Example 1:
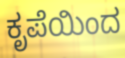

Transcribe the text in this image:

ಕೃಪೆಯಿಂದ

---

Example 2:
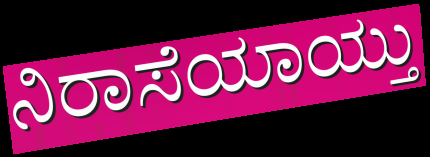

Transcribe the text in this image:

ನಿರಾಸೆಯಾಯ್ತು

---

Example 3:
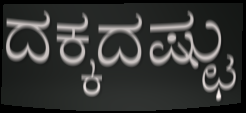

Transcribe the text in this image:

ದಕ್ಕದಷ್ಟು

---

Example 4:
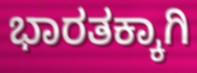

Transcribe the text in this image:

ಭಾರತಕ್ಕಾಗಿ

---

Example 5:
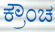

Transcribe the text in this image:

ಕ್ರೌಂಚ